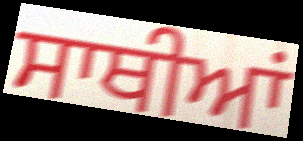
ਸਾਥੀਆਂ